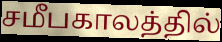
சமீபகாலத்தில்